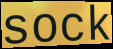
sock